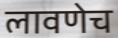
लावणेच